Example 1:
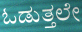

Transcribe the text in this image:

ಓಡುತ್ತಲೇ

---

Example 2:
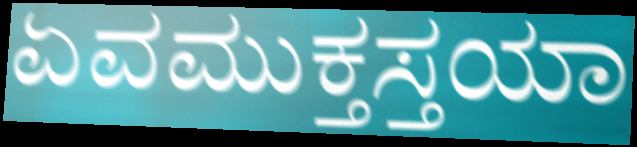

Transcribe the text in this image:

ಏವಮುಕ್ತಸ್ತಯಾ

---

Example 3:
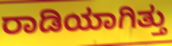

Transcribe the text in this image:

ರಾಡಿಯಾಗಿತ್ತು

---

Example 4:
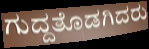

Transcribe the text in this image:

ಗುದ್ದತೊಡಗಿದರು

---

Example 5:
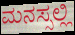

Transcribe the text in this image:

ಮನಸ್ಸಲ್ಲಿ